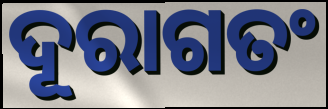
ଦୂରାଗତଂ